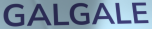
GALGALE